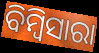
ବିମ୍ବିସାରା